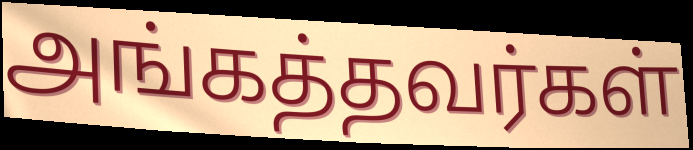
அங்கத்தவர்கள்